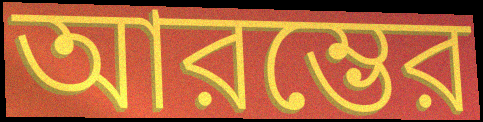
আরম্ভের